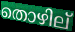
തൊഴില്